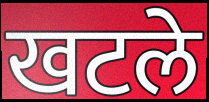
खटले